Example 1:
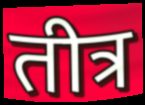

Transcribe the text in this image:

तीत्र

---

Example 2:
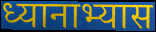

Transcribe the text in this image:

ध्यानाभ्यास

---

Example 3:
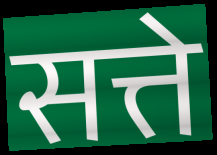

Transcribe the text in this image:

सत्ते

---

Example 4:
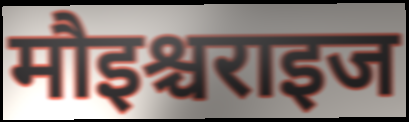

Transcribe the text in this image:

मौइश्चराइज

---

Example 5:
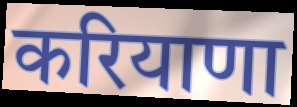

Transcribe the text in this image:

करियाणा